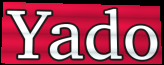
Yado